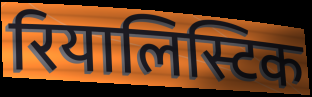
रियालिस्टिक